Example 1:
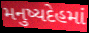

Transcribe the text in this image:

મનુષ્યદેહમાં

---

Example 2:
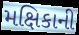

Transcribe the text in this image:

મક્ષિકાની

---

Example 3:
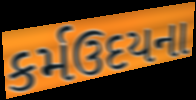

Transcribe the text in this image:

કર્મઉદયના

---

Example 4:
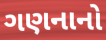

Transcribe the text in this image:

ગણનાનો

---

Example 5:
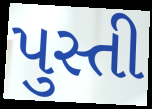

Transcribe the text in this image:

પુસ્તી